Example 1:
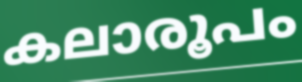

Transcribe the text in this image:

കലാരൂപം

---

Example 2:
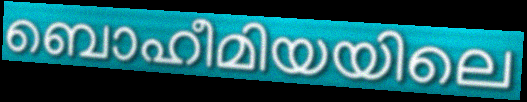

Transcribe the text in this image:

ബൊഹീമിയയിലെ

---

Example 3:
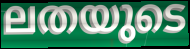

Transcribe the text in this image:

ലതയുടെ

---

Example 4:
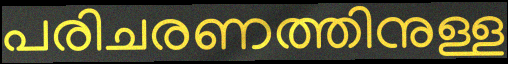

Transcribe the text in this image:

പരിചരണത്തിനുള്ള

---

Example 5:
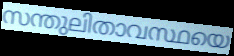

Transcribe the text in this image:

സന്തുലിതാവസ്ഥയെ